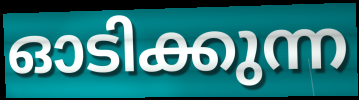
ഓടിക്കുന്ന